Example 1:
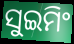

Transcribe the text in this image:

ସୁଇମିଂ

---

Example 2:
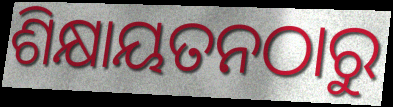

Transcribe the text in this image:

ଶିକ୍ଷାୟତନଠାରୁ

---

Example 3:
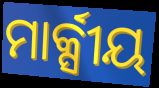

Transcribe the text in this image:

ମାର୍କ୍ସୀୟ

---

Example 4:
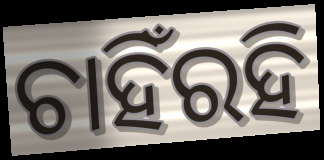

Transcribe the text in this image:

ଚାହିଁରହି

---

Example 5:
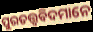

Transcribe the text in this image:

ପୁରତତ୍ତ୍ୱବିଦମାନେ